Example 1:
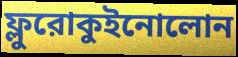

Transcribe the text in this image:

ফ্লুরোকুইনোলোন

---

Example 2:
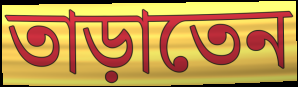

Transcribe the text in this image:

তাড়াতেন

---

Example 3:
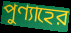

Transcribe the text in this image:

পুণ্যাহের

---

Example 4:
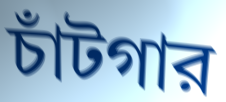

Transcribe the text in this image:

চাঁটগার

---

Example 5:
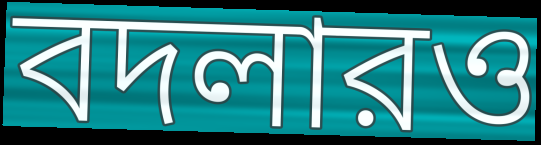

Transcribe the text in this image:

বদলারও